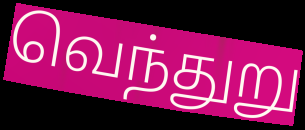
வெந்துறு